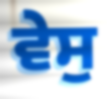
ਵੇਸੁ